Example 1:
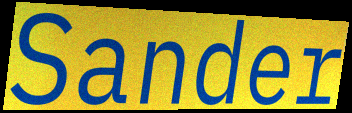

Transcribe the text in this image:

Sander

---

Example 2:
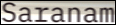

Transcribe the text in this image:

Saranam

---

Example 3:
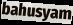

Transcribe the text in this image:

bahusyam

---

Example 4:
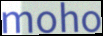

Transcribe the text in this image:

moho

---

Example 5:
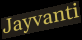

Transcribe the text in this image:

Jayvanti